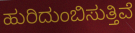
ಹುರಿದುಂಬಿಸುತ್ತಿವೆ